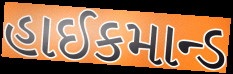
હાઈકમાન્ડ